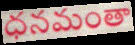
ధనమంతా